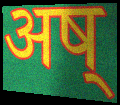
अष्